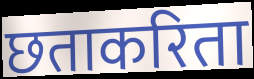
छताकरिता